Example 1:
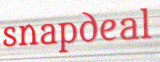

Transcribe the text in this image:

snapdeal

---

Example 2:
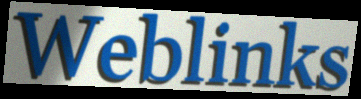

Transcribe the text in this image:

Weblinks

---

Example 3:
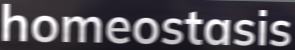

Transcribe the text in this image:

homeostasis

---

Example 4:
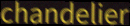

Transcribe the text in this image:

chandelier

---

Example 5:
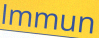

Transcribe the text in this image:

Immun